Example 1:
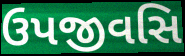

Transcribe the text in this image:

ઉપજીવસિ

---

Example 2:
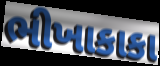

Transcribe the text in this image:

ભીખાકાકા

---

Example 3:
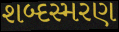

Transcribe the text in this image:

શબ્દસ્મરણ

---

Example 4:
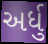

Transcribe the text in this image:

અર્ધુ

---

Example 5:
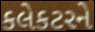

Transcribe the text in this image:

કલેકટરને